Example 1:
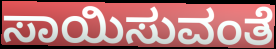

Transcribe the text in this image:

ಸಾಯಿಸುವಂತೆ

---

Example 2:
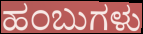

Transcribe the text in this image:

ಹಂಬುಗಳು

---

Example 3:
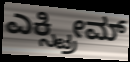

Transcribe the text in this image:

ಎಕ್ಸ್ಟ್ರೀಮ್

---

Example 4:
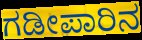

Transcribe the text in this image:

ಗಡೀಪಾರಿನ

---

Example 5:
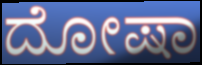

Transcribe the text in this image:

ದೋಷಾ